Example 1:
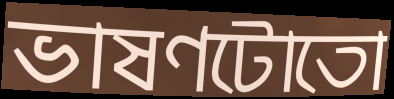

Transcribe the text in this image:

ভাষণটোতো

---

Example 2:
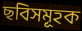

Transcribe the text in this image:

ছবিসমূহক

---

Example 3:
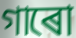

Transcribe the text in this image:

গাৰো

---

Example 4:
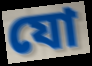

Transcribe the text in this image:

যো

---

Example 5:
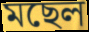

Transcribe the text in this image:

মছেল